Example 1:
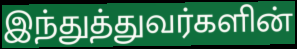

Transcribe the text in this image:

இந்துத்துவர்களின்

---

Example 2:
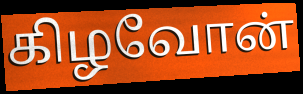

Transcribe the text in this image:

கிழவோன்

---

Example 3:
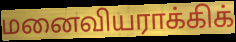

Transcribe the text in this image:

மனைவியராக்கிக்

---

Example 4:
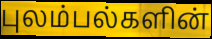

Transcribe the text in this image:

புலம்பல்களின்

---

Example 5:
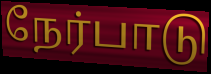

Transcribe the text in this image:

நேர்பாடு